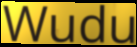
Wudu